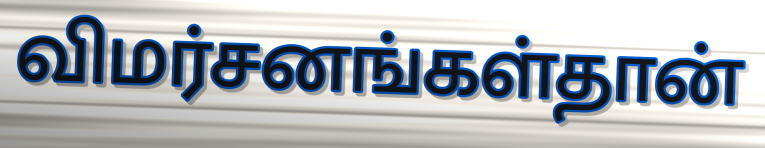
விமர்சனங்கள்தான்